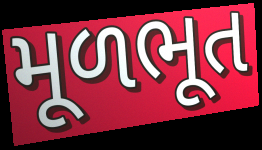
મૂળભૂત